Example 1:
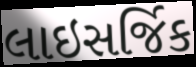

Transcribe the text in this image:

લાઇસર્જિક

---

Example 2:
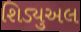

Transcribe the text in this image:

શિડ્યુઅલ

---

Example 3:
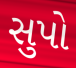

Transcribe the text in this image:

સુપો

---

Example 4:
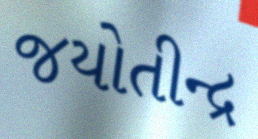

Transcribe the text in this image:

જયોતીન્દ્ર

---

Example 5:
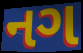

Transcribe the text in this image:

નગ